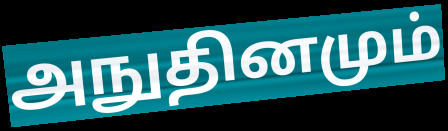
அநுதினமும்